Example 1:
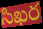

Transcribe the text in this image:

సిఖర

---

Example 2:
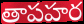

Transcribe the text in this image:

తాపహర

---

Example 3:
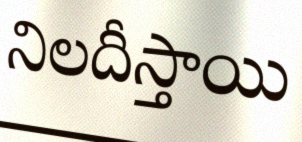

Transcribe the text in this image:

నిలదీస్తాయి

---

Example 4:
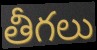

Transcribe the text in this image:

తీగలు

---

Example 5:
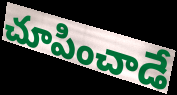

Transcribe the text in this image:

చూపించాడే